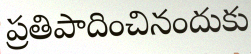
ప్రతిపాదించినందుకు